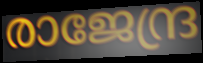
രാജേന്ദ്ര